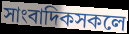
সাংবাদিকসকলে